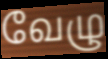
வேழு